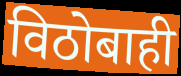
विठोबाही